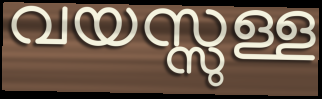
വയസ്സുള്ള